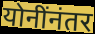
योनींनंतर